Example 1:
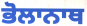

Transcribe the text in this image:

ਭੋਲਾਨਾਥ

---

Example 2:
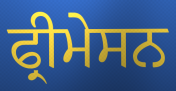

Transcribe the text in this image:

ਫ੍ਰੀਮੇਸਨ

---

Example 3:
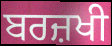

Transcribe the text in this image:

ਬਰਜ਼ਖੀ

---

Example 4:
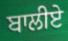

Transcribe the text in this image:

ਬਾਲੀਏ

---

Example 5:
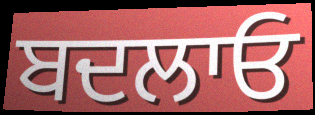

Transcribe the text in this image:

ਬਦਲਾਓ